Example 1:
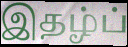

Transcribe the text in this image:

இதழ்ப்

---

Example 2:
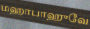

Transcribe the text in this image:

மஹாபாஹுவே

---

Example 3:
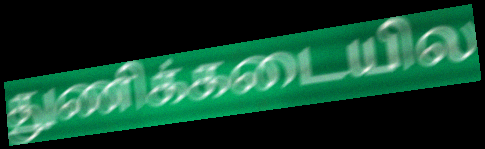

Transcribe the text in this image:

துணிக்கடையில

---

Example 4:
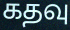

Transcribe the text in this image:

கதவு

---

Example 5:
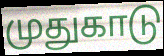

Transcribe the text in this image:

முதுகாடு